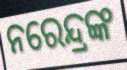
ନରେନ୍ଦ୍ରଙ୍କ